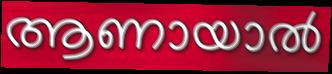
ആണായാൽ